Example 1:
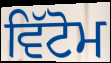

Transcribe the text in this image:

ਵਿੱਟੋਮ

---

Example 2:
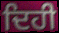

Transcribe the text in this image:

ਦਿਹੀ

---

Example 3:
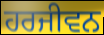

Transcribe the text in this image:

ਹਰਜੀਵਨ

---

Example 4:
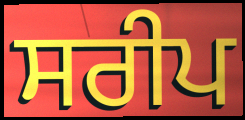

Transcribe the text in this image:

ਸਰੀਪ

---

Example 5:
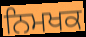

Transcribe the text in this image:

ਨਿਮਖਕ